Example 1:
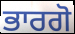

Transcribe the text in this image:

ਭਾਰਗੋ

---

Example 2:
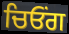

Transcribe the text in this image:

ਚਿਓਂਗ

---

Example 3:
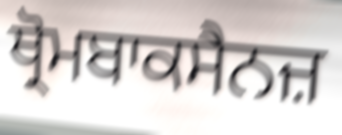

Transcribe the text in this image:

ਥ੍ਰੋਮਬਾਕਸੈਨਜ਼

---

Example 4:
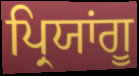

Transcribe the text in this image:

ਪ੍ਰਿਯਾਂਗੂ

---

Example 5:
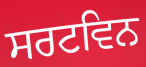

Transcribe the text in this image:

ਸਰਟਵਿਨ